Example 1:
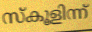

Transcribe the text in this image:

സ്കൂളിന്ന്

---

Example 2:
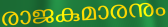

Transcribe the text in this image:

രാജകുമാരനും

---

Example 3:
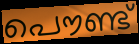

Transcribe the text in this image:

പൌണ്ട്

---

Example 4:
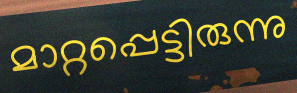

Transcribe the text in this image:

മാറ്റപ്പെട്ടിരുന്നു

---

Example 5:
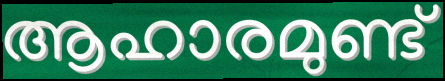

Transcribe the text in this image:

ആഹാരമുണ്ട്